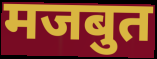
मजबुत